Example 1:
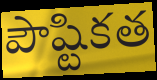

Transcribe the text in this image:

పౌష్టికత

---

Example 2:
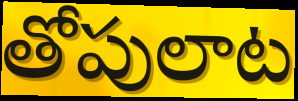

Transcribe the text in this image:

తోపులాట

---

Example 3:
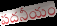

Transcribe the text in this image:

పదనీయం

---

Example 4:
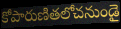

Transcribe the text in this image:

కోపారుణితలోచనుండై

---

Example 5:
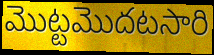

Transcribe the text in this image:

మొట్టమొదటసారి